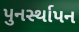
પુનર્સ્થાપન